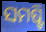
ସମଷ୍ଟି